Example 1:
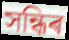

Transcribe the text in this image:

সন্ধিৰ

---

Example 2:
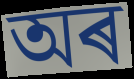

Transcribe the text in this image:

অৰ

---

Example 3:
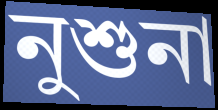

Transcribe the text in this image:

নুশুনা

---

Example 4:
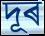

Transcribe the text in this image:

দূৰ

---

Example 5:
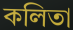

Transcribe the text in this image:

কলিতা